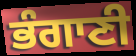
ਭੰਗਾਣੀ